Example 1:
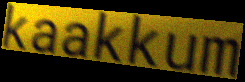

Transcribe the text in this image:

kaakkum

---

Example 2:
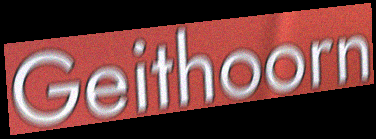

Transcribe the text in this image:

Geithoorn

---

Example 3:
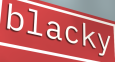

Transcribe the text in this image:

blacky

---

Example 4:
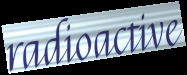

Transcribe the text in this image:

radioactive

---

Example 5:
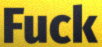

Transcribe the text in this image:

Fuck